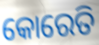
କୋରେତି